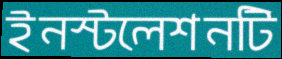
ইনস্টলেশনটি